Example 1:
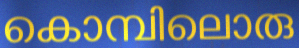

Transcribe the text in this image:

കൊമ്പിലൊരു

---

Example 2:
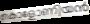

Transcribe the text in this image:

കൊളോണിയൻ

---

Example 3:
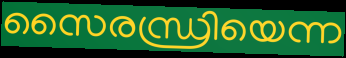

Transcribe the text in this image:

സൈരന്ധ്രിയെന്ന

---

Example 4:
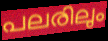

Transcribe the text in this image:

പലരിലും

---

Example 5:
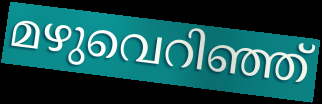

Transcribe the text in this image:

മഴുവെറിഞ്ഞ്